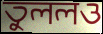
তুললও